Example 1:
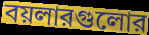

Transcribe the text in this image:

বয়লারগুলোর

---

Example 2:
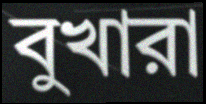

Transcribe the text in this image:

বুখারা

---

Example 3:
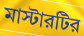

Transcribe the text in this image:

মাস্টারটির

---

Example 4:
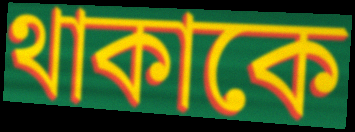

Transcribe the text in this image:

থাকাকে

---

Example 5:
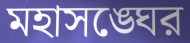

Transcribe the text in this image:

মহাসঙ্ঘের